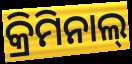
କ୍ରିମିନାଲ୍